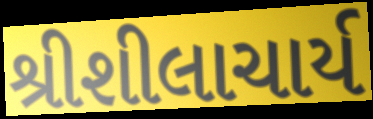
શ્રીશીલાચાર્ય